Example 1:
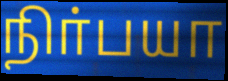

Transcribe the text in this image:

நிர்பயா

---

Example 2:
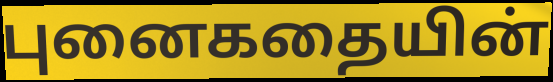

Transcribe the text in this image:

புனைகதையின்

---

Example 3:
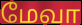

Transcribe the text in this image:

மேவா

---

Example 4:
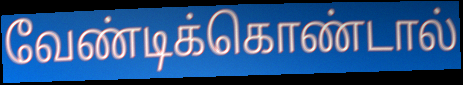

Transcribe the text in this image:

வேண்டிக்கொண்டால்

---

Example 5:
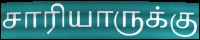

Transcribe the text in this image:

சாரியாருக்கு